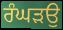
ਰੰਘੜਉ